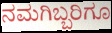
ನಮಗಿಬ್ಬರಿಗೂ